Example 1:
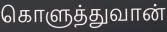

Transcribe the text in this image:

கொளுத்துவான்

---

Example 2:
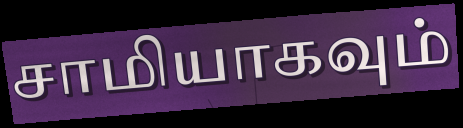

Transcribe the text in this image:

சாமியாகவும்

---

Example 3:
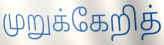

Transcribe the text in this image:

முறுக்கேறித்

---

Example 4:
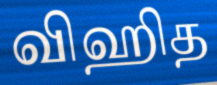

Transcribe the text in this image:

விஹித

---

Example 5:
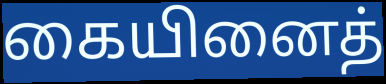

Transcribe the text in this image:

கையினைத்